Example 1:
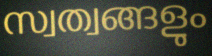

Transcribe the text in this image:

സ്വത്വങ്ങളും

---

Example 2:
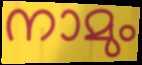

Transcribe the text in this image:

നാമും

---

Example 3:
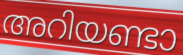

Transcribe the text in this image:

അറിയണ്ടാ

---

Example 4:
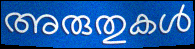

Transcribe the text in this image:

അരുതുകൾ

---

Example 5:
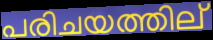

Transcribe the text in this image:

പരിചയത്തില്